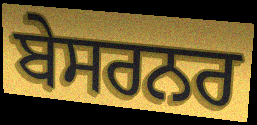
ਬੇਸਰਨਰ